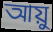
আয়ু